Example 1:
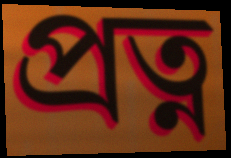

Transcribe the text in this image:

প্ৰত্ন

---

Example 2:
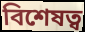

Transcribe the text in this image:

বিশেষত্ব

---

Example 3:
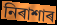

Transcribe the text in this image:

নিৰাশাৰ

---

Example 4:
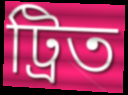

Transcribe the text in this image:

ট্ৰিত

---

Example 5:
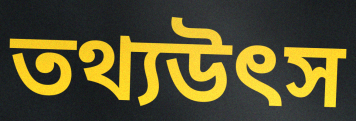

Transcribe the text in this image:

তথ্যউৎস